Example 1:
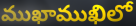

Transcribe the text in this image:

ముఖాముఖిలో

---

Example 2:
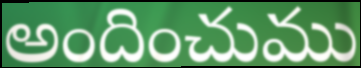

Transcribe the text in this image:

అందించుము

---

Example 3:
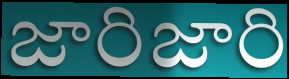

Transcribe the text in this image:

జారిజారి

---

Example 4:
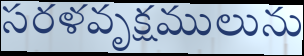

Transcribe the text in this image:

సరళవృక్షములును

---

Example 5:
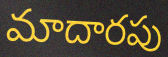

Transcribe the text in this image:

మాదారపు